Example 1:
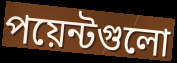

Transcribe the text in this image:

পয়েন্টগুলো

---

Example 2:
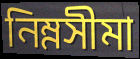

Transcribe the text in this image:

নিম্নসীমা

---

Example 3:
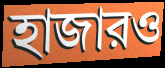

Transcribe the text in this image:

হাজারও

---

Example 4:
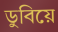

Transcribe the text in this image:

ডুবিয়ে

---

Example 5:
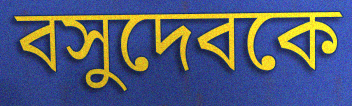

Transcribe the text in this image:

বসুদেবকে